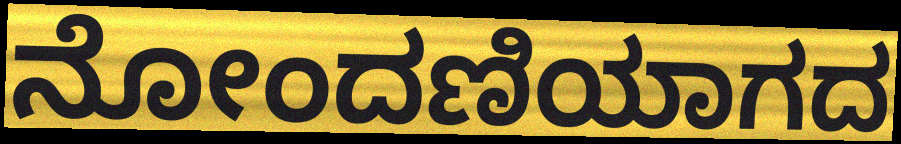
ನೋಂದಣಿಯಾಗದ